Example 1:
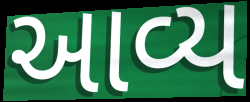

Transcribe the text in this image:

આવ્ય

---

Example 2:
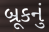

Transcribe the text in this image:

બ્રૂકનું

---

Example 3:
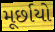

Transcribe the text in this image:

મૂર્છાયો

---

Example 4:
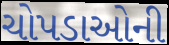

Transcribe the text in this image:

ચોપડાઓની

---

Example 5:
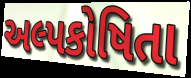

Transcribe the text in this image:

અલ્પકોષિતા